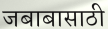
जबाबासाठी